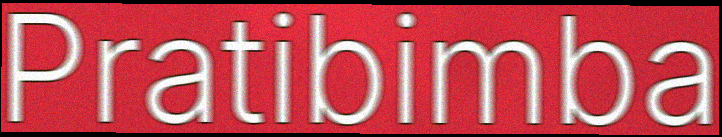
Pratibimba